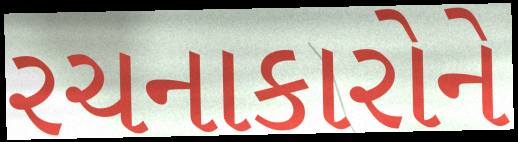
રચનાકારોને